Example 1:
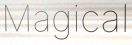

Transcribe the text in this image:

Magical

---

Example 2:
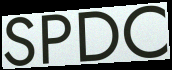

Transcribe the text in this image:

SPDC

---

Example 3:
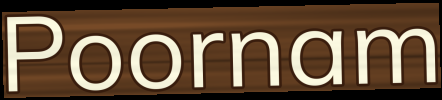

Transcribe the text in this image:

Poornam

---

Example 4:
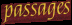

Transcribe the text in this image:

passages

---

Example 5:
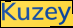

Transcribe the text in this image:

Kuzey